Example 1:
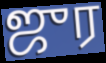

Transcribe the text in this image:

ஜுர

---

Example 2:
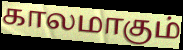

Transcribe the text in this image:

காலமாகும்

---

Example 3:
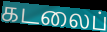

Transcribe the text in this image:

கடலைப்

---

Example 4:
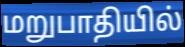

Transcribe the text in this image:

மறுபாதியில்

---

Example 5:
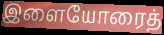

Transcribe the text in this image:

இளையோரைத்